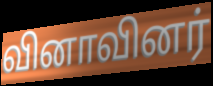
வினாவினர்